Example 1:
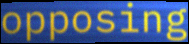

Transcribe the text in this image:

opposing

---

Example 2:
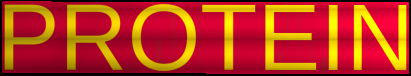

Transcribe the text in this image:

PROTEIN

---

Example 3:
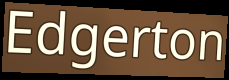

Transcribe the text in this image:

Edgerton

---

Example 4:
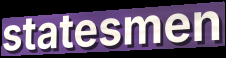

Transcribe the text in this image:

statesmen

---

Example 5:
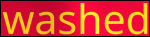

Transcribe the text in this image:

washed